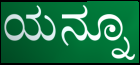
ಯನ್ನೂ